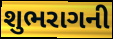
શુભરાગની